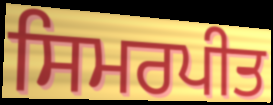
ਸਿਮਰਪੀਤ